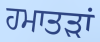
ਹਮਾਤੜਾਂ